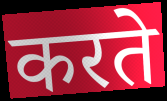
करते